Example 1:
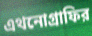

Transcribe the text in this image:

এথনোগ্রাফির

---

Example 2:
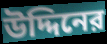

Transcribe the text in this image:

উদ্দিনের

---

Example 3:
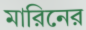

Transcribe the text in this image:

মারিনের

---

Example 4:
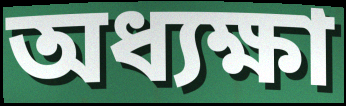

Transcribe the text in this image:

অধ্যক্ষা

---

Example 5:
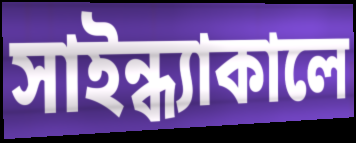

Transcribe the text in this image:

সাইন্ধ্যাকালে